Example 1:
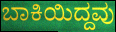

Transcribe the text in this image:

ಬಾಕಿಯಿದ್ದವು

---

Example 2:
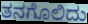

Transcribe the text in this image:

ತನಗೊಲಿದು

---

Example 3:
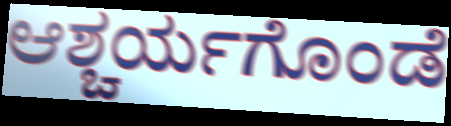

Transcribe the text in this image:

ಆಶ್ಚರ್ಯಗೊಂಡೆ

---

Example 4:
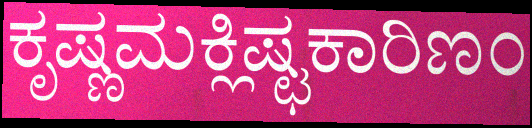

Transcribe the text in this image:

ಕೃಷ್ಣಮಕ್ಲಿಷ್ಟಕಾರಿಣಂ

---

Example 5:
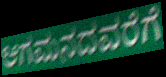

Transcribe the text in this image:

ಆಗಮನದವರೆಗೆ